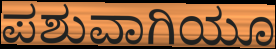
ಪಶುವಾಗಿಯೂ